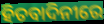
ହିତବାଦିନୀରେ